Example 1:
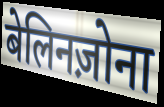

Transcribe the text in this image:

बेलिनज़ोना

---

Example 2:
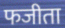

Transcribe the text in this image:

फजीता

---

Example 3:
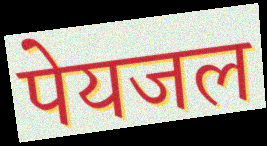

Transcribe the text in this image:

पेयजल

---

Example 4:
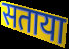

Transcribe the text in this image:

सताया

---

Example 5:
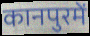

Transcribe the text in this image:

कानपुरमें